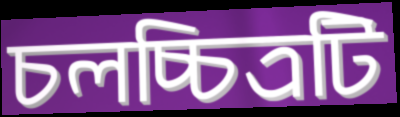
চলচ্চিত্রটি